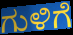
ಗುಳಿಗೆ